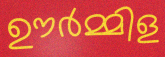
ഊർമ്മിള